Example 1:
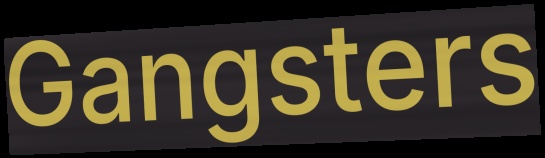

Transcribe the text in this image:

Gangsters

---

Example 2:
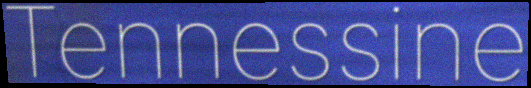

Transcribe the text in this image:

Tennessine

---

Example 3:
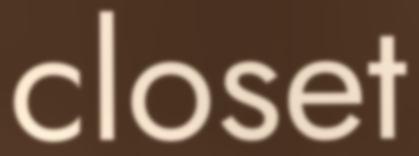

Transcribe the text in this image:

closet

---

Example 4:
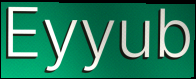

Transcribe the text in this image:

Eyyub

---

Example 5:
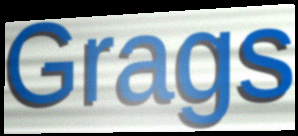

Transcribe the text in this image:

Grags